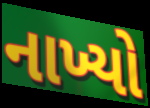
નાખ્યો